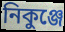
নিকুঞ্জে